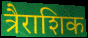
त्रैराशिक